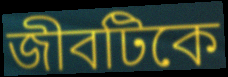
জীবটিকে